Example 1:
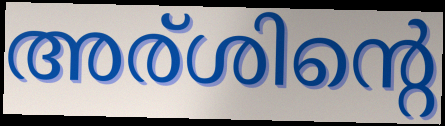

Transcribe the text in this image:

അര്ശിന്റെ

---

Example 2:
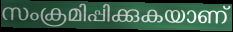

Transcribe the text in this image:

സംക്രമിപ്പിക്കുകയാണ്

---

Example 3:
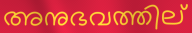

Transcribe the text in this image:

അനുഭവത്തില്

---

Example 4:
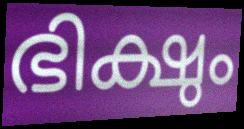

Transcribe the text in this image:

ഭിക്ഷും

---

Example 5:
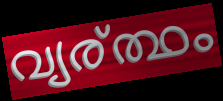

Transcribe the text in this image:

വ്യര്ത്ഥം